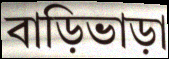
বাড়িভাড়া